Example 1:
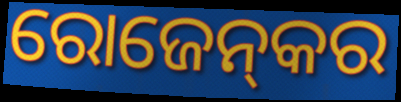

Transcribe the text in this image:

ରୋଜେନ୍‌କର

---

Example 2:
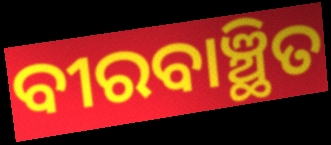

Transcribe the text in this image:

ବୀରବାଞ୍ଛିତ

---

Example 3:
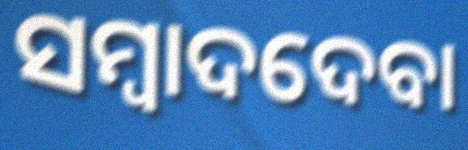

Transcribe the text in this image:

ସମ୍ବାଦଦେବା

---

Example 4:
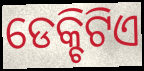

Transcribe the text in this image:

ଡେକ୍ଚିଟିଏ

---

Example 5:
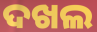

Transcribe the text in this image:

ଦଖଲ